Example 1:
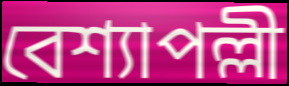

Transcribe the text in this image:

বেশ্যাপল্লী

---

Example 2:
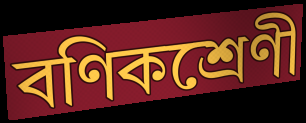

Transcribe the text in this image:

বণিকশ্রেণী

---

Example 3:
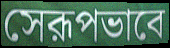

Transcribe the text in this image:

সেরূপভাবে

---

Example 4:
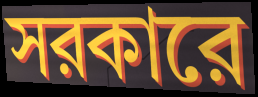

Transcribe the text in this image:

সরকারে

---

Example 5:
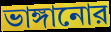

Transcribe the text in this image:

ভাঙ্গানোর